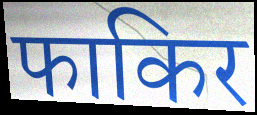
फाकिर